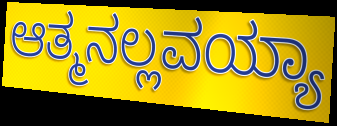
ಆತ್ಮನಲ್ಲವಯ್ಯಾ